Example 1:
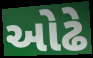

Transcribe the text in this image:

ઓઢે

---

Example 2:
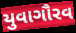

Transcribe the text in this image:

યુવાગૌરવ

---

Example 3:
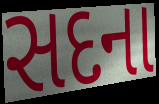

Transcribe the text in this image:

સદના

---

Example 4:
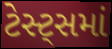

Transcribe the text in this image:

ટેસ્ટ્સમાં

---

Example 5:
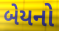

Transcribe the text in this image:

બેયનો